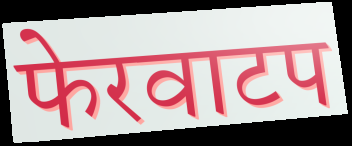
फेरवाटप